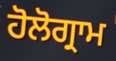
ਹੋਲੋਗ੍ਰਾਮ